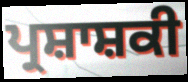
ਪ੍ਰਸ਼ਾਸ਼ਕੀ